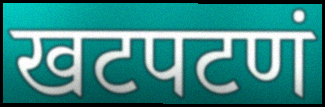
खटपटणं